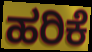
ಹರಿಕೆ